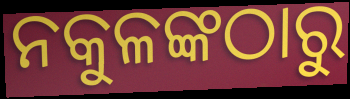
ନକୁଳଙ୍କଠାରୁ